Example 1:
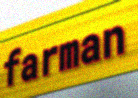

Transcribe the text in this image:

farman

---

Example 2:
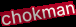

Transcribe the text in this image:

chokman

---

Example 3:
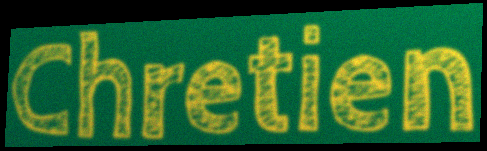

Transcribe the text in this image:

Chretien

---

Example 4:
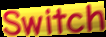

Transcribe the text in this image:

Switch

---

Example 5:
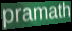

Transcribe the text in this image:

pramath